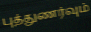
புத்துணர்வும்